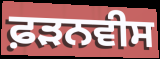
ਫ਼ੜਨਵੀਸ